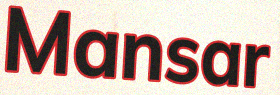
Mansar